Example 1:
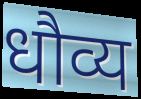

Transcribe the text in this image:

धौव्य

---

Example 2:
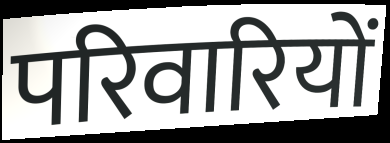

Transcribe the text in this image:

परिवारियों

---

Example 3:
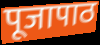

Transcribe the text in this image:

पूजापाठ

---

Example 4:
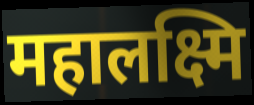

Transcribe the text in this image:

महालक्ष्मि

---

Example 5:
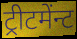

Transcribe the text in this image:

ट्रीटमेंन्ट